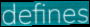
defines